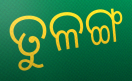
ତୁଳଙ୍ଗ